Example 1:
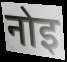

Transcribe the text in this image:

नोइ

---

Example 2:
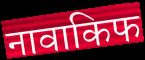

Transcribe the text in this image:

नावाकिफ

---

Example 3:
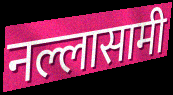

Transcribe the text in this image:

नल्लासामी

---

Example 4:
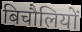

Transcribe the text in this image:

बिचौलियों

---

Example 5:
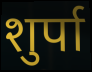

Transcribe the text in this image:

शुर्पा